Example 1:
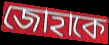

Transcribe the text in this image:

জোহাকে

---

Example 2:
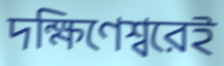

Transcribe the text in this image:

দক্ষিণেশ্বরেই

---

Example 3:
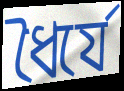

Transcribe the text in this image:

ধৈর্যে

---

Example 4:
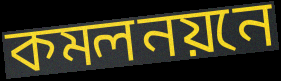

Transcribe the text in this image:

কমলনয়নে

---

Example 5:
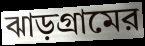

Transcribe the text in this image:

ঝাড়গ্রামের